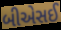
બીએસઈ